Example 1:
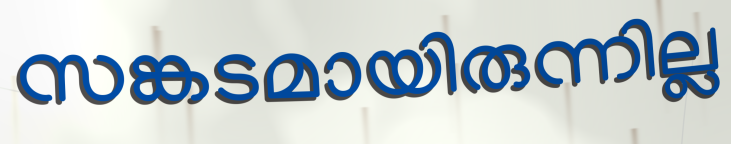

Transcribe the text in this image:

സങ്കടമായിരുന്നില്ല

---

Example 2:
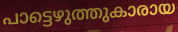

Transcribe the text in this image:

പാട്ടെഴുത്തുകാരായ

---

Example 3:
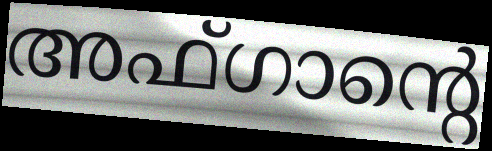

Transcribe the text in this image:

അഫ്ഗാന്റെ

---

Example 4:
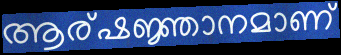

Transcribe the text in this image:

ആര്ഷജ്ഞാനമാണ്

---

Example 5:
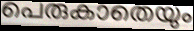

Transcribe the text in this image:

പെരുകാതെയും